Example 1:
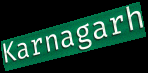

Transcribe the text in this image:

Karnagarh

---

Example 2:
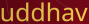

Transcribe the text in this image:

uddhav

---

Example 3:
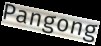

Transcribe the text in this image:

Pangong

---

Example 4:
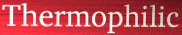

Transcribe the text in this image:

Thermophilic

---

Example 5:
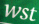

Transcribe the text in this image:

wst